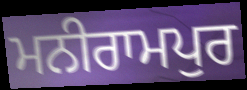
ਮਨੀਰਾਮਪੁਰ